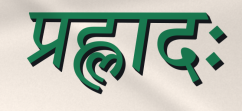
प्रह्लादः